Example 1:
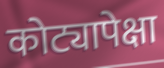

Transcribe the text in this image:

कोट्यापेक्षा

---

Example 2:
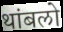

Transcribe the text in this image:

थांबलो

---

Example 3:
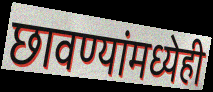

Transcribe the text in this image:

छावण्यांमध्येही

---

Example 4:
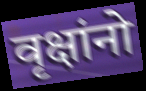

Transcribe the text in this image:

वृक्षांनो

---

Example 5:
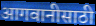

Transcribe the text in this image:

आगवानीसाठी